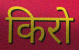
किरो